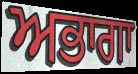
ਅਭਾਗਾ